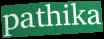
pathika